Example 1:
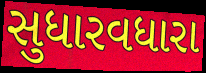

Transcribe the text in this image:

સુધારવધારા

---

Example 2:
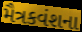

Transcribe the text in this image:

મૈત્રકવંશના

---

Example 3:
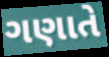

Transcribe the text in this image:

ગણાતે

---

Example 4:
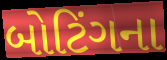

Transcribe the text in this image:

બોટિંગના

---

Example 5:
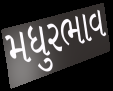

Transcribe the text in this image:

મધુરભાવ